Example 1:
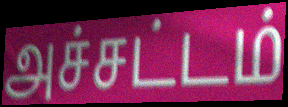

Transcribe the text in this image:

அச்சட்டம்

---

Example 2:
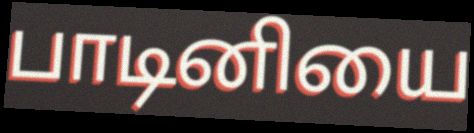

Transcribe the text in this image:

பாடினியை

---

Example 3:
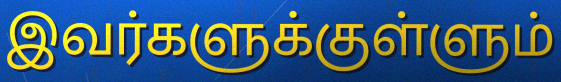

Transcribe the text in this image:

இவர்களுக்குள்ளும்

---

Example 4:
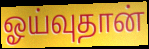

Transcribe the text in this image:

ஓய்வுதான்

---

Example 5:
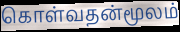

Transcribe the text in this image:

கொள்வதன்மூலம்